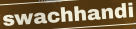
swachhandi